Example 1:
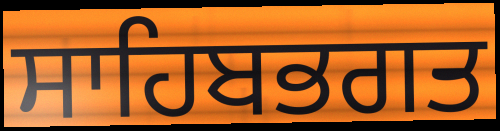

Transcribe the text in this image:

ਸਾਹਿਬਭਗਤ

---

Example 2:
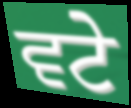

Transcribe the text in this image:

ਵਟੇ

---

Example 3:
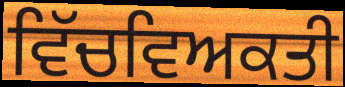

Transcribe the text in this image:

ਵਿੱਚਵਿਅਕਤੀ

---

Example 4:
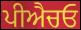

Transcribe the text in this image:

ਪੀਐਚਓ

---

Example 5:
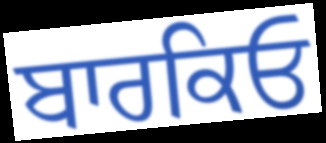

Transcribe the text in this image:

ਬਾਰਕਿਓ